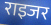
राइजर